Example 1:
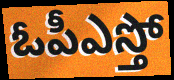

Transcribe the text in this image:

ఓపీఎస్తో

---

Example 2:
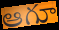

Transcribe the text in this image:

ఆగూ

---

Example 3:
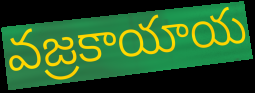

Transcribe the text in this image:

వజ్రకాయాయ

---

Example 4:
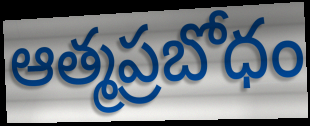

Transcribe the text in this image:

ఆత్మప్రబోధం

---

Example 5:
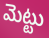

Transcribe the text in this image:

మెట్టు